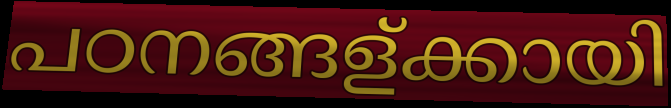
പഠനങ്ങള്ക്കായി